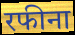
रफीना